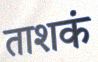
ताशकं